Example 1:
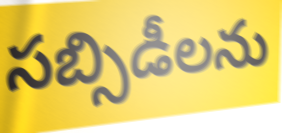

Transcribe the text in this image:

సబ్సిడీలను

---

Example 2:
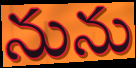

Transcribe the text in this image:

నును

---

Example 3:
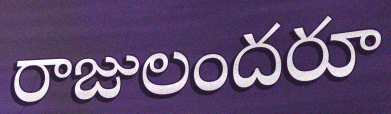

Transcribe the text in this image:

రాజులందరూ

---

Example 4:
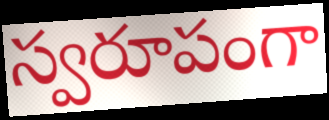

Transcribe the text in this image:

స్వరూపంగా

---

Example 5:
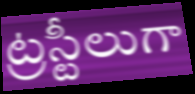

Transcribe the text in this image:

ట్రస్టీలుగా